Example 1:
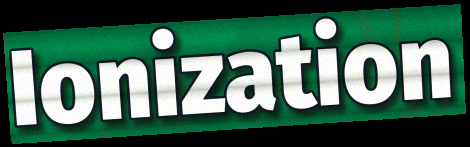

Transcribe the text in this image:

Ionization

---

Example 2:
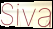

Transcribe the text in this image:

Siva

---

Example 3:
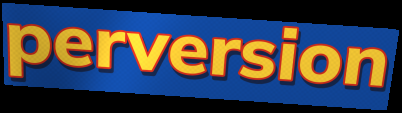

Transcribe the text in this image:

perversion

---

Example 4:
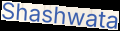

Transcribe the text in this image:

Shashwata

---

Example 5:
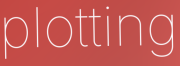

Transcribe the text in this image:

plotting